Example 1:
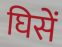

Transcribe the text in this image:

घिसें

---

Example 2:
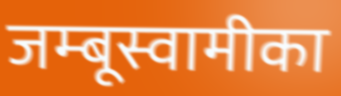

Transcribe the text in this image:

जम्बूस्वामीका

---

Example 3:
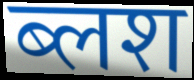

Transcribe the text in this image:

ब्लश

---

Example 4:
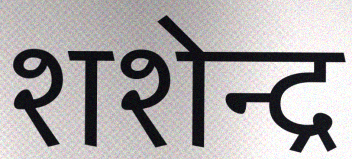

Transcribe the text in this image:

शशेन्द्र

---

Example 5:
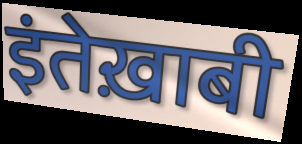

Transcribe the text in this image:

इंतेख़ाबी